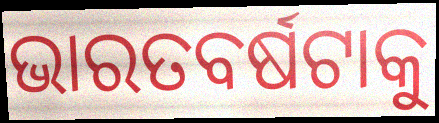
ଭାରତବର୍ଷଟାକୁ